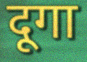
दूगा